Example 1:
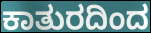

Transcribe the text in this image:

ಕಾತುರದಿಂದ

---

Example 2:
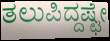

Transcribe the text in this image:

ತಲುಪಿದ್ದಷ್ಟೇ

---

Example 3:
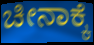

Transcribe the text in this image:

ಚೀನಾಕ್ಕೆ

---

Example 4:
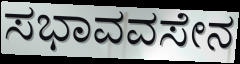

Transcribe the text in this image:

ಸಭಾವವಸೇನ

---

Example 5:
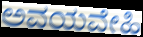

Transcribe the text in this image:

ಅವಯವೇಹಿ